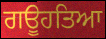
ਗਊਹਤਿਆ